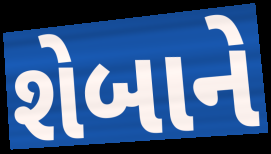
શેબાને